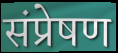
संप्रेषण